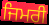
ਜਿਮਰੀ